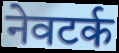
नेवटर्क